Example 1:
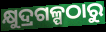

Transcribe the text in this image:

କ୍ଷୁଦ୍ରଗଳ୍ପଠାରୁ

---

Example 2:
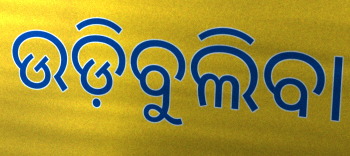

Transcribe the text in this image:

ଉଡ଼ିବୁଲିବା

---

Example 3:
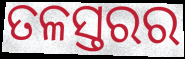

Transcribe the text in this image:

ତଳସ୍ତରର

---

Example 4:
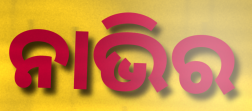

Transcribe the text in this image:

ନାଭିର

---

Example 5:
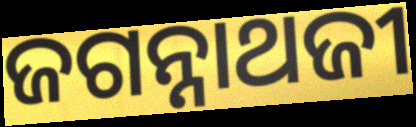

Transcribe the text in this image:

ଜଗନ୍ନାଥଜୀ